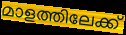
മാളത്തിലേക്ക്